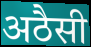
अठैसी